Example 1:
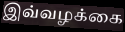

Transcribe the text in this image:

இவ்வழக்கை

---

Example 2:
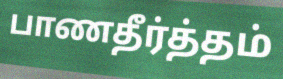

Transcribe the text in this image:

பாணதீர்த்தம்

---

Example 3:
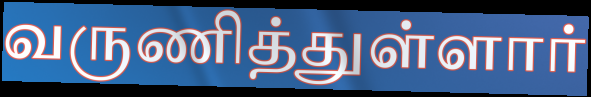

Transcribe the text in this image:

வருணித்துள்ளார்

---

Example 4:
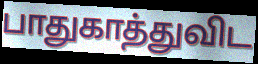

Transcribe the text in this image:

பாதுகாத்துவிட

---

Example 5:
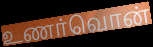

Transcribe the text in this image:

உணர்வொன்